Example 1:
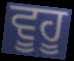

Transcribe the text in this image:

ਵੂਹੂ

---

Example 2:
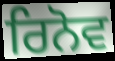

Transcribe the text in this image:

ਰਿਨੋਵ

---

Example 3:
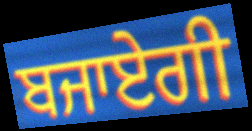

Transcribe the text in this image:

ਬਜਾਏਗੀ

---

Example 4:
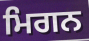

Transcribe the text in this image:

ਮਿਗਨ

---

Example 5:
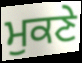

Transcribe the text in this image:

ਮੁਕਣੇ